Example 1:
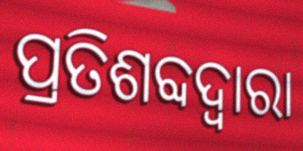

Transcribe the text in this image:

ପ୍ରତିଶବ୍ଦଦ୍ୱାରା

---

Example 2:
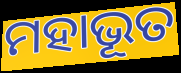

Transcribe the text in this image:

ମହାଭୂତ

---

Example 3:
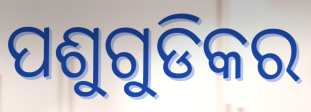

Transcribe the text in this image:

ପଶୁଗୁଡିକର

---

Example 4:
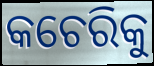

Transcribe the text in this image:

କଚେରିକୁ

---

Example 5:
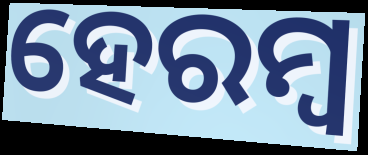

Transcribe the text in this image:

ହେରମ୍ୱ